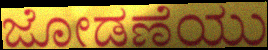
ಜೋಡಣೆಯು